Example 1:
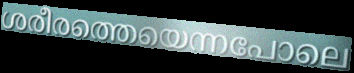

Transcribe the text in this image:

ശരീരത്തെയെന്നപോലെ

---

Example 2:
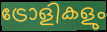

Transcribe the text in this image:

ട്രോളികളും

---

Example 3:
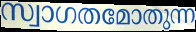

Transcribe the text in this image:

സ്വാഗതമോതുന്ന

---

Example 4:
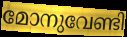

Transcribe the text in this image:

മോനുവേണ്ടി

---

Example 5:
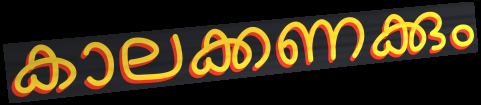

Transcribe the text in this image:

കാലക്കണക്കും